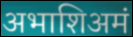
अभाशिअमं